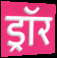
ड्रॉर